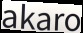
akaro